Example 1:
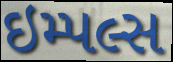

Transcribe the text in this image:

ઇમ્પલ્સ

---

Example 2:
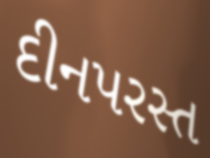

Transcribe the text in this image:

દીનપરસ્ત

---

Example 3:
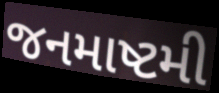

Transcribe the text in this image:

જનમાષ્ટમી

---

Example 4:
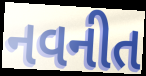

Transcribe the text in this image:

નવનીત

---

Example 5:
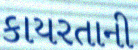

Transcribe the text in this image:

કાયરતાની